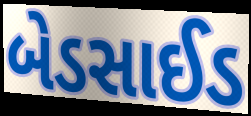
બેડસાઈડ